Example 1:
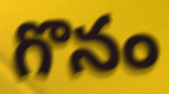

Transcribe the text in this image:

గొనం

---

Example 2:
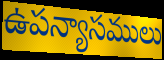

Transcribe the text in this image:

ఉపన్యాసములు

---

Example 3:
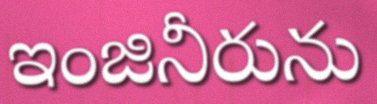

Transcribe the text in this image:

ఇంజినీరును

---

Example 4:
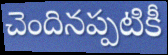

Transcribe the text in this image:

చెందినప్పటికీ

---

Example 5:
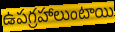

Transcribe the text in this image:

ఉపగ్రహాలుంటాయి